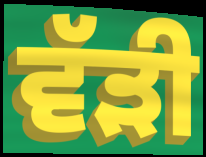
ਵੱੜੀ